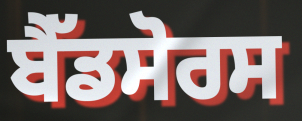
ਬੈੱਡਸੋਰਸ